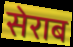
सेराब